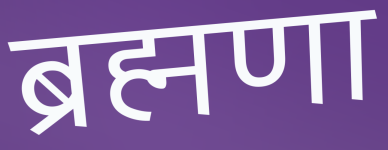
ब्रह्मणा